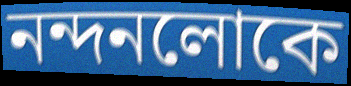
নন্দনলোকে